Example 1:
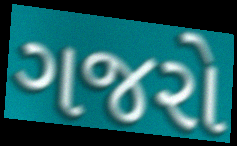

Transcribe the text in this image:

ગજરો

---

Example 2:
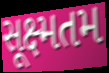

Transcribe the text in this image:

સૂક્ષ્મતમ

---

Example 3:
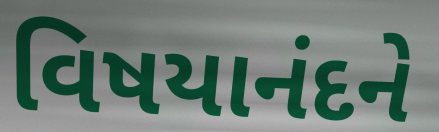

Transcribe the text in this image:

વિષયાનંદને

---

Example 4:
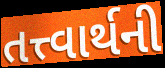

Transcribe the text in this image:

તત્ત્વાર્થની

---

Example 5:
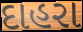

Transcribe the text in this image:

દાહરા